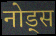
नोड्स